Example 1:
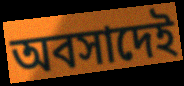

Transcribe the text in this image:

অবসাদেই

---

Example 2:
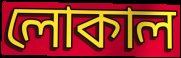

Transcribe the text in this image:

লোকাল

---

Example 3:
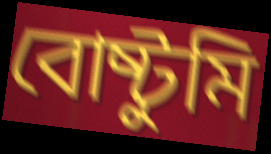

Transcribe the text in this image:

বোষ্টুমি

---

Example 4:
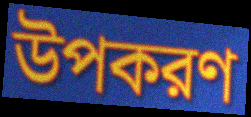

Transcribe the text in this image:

উপকরণ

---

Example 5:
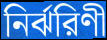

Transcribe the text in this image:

নির্ঝরিণী